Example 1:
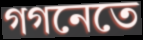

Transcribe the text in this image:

গগনেতে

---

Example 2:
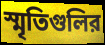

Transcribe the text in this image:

স্মৃতিগুলির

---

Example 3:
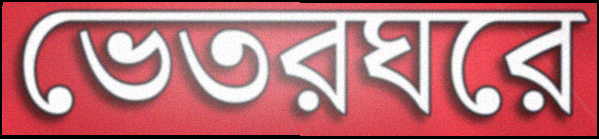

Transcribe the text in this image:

ভেতরঘরে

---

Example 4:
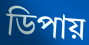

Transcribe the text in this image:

ডিপায়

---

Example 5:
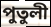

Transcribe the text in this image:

পুতুলী